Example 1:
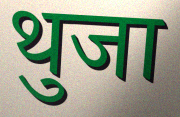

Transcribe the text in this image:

थुजा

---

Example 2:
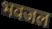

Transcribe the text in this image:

भवजल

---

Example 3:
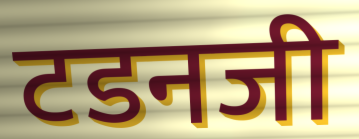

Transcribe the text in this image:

टडनजी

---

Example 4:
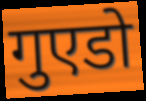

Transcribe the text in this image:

गुएडो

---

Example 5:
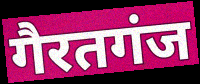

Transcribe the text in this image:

गैरतगंज